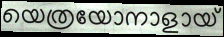
യെത്രയോനാളായ്